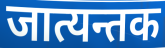
जात्यन्तक